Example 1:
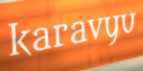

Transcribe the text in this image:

karavyu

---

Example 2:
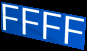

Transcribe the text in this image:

FFFF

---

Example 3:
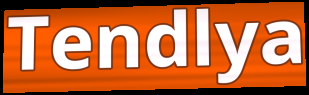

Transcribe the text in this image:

Tendlya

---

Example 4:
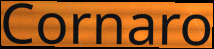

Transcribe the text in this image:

Cornaro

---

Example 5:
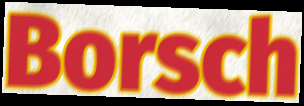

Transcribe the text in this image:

Borsch